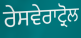
ਰੇਸਵੇਰਾਟ੍ਰੋਲ